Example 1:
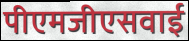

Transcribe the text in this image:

पीएमजीएसवाई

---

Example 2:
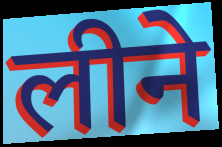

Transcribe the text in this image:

लीने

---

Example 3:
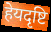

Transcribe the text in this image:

हेयदृष्टि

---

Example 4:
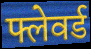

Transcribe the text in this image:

फ्लेवर्ड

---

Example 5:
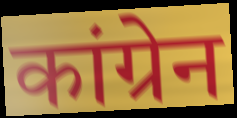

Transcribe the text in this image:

कांग्रेन